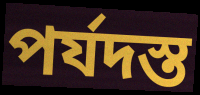
পর্যদস্ত